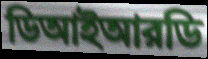
ডিআইআরডি